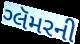
ગ્લૅમરની